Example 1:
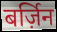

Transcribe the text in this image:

बर्ज़िन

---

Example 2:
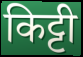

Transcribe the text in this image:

किट्टी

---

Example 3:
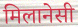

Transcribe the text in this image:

मिलानेसी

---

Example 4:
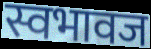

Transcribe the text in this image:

स्वभावज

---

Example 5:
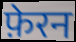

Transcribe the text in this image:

फ़ेरन